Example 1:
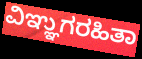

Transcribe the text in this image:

ವಿಞ್ಞುಗರಹಿತಾ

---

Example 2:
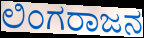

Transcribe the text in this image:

ಲಿಂಗರಾಜನ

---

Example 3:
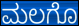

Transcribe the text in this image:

ಮಲಗೊ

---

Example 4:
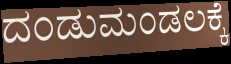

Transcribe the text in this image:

ದಂಡುಮಂಡಲಕ್ಕೆ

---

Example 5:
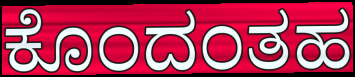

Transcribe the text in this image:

ಕೊಂದಂತಹ